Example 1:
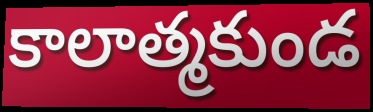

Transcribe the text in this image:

కాలాత్మకుండ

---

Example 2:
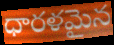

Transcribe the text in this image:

ధారళమైన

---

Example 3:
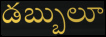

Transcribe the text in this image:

డబ్బులూ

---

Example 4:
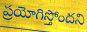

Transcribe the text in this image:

ప్రయోగిస్తోందని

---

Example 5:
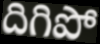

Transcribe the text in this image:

దిగిపో